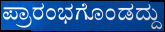
ಪ್ರಾರಂಭಗೊಂಡದ್ದು